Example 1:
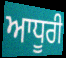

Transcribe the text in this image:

ਆਧੂਰੀ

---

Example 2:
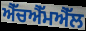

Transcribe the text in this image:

ਐੱਚਐੱਮਐੱਲ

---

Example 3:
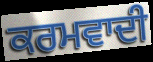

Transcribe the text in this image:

ਕਰਮਵਾਦੀ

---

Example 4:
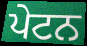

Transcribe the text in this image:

ਪੇਟਨ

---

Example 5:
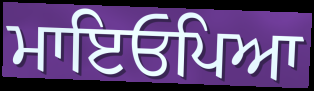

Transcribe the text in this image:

ਮਾਇਓਪਿਆ